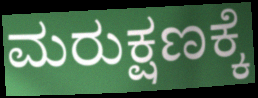
ಮರುಕ್ಷಣಕ್ಕೆ